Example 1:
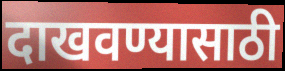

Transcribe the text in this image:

दाखवण्यासाठी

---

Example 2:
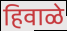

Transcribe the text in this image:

हिवाळे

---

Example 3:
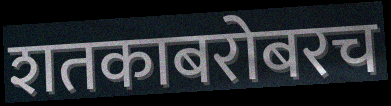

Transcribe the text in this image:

शतकाबरोबरच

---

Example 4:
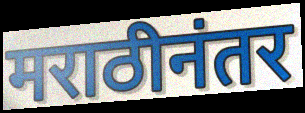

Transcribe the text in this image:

मराठीनंतर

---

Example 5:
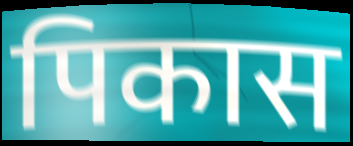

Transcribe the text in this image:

पिकास